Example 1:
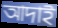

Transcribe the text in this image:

আদাই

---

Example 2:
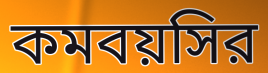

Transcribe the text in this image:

কমবয়সির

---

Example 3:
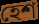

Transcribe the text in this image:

হেশ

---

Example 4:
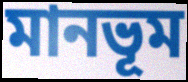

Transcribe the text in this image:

মানভূম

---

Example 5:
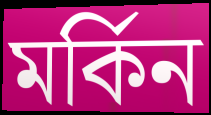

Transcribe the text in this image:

মর্কিন